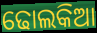
ଢୋଲକିଆ